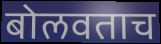
बोलवताच